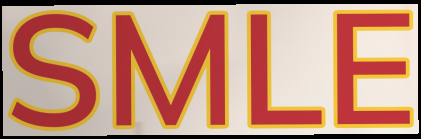
SMLE